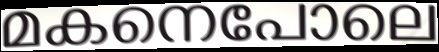
മകനെപോലെ